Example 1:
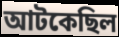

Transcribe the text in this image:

আটকেছিল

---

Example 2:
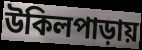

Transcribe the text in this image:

উকিলপাড়ায়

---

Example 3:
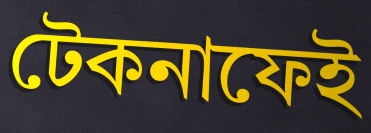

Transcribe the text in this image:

টেকনাফেই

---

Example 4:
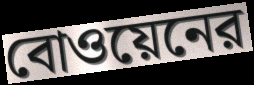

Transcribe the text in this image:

বোওয়েনের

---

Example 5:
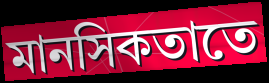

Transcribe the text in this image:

মানসিকতাতে